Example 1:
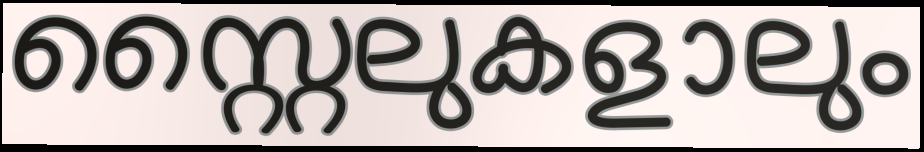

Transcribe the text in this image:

സ്റ്റൈലുകളാലും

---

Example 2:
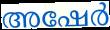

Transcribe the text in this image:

അഷേർ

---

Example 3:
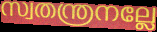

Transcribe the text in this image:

സ്വതന്ത്രനല്ലേ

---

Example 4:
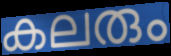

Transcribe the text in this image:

കലരും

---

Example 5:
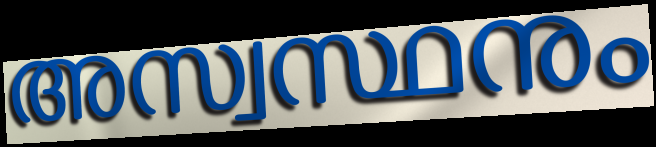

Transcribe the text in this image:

അസ്വസ്ഥനും